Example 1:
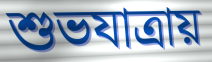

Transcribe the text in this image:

শুভযাত্রায়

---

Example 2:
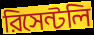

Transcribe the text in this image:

রিসেন্টলি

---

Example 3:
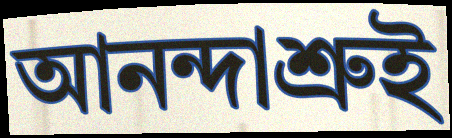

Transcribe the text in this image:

আনন্দাশ্রুই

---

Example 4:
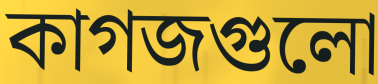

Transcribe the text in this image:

কাগজগুলো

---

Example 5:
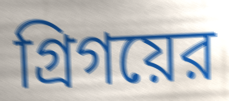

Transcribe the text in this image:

গ্রিগয়ের